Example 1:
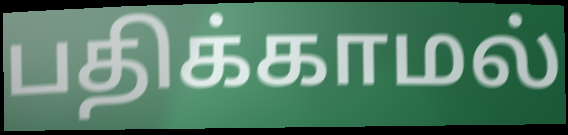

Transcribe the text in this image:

பதிக்காமல்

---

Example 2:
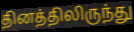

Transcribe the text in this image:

தினத்திலிருந்து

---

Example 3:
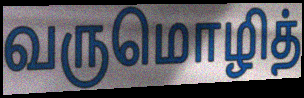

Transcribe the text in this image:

வருமொழித்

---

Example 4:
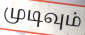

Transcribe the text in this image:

முடிவும்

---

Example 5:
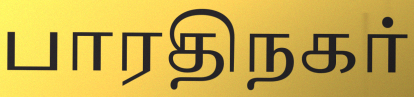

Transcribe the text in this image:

பாரதிநகர்